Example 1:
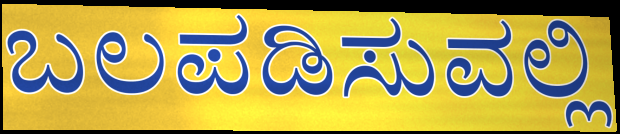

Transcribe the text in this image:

ಬಲಪಡಿಸುವಲ್ಲಿ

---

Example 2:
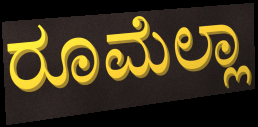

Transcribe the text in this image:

ರೂಮೆಲ್ಲಾ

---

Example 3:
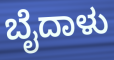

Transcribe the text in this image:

ಬೈದಾಳು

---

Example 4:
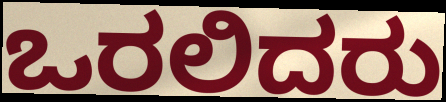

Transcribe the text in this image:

ಒರಲಿದರು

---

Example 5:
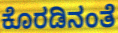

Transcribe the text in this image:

ಕೊರಡಿನಂತೆ